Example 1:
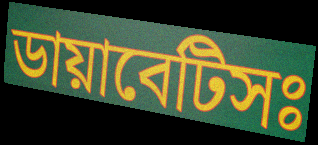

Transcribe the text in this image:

ডায়াবেটিসঃ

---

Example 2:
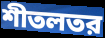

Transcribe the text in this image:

শীতলতর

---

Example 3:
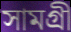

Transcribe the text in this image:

সামগ্রী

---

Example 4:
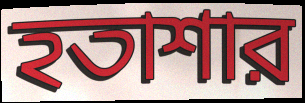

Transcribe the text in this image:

হতাশার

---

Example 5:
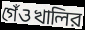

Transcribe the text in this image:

গেঁওখালির